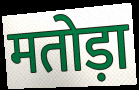
मतोड़ा